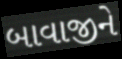
બાવાજીને